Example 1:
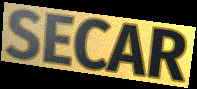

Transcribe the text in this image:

SECAR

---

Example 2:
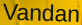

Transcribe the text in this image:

Vandan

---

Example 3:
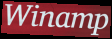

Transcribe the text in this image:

Winamp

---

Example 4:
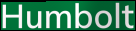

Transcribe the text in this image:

Humbolt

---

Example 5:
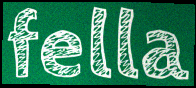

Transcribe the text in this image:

fella